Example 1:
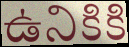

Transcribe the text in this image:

ఉనికికి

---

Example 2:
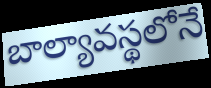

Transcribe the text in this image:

బాల్యావస్థలోనే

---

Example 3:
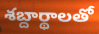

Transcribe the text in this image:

శబ్దార్థాలతో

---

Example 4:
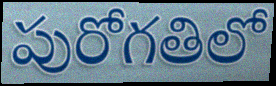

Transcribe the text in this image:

పురోగతిలో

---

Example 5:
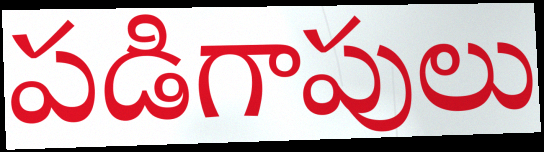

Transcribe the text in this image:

పడిగాపులు